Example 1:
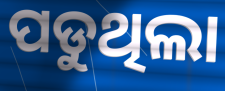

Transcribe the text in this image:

ପଡୁଥିଲା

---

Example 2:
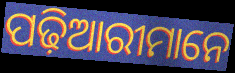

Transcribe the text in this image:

ପଢ଼ିଆରୀମାନେ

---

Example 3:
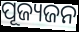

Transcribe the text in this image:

ପୂଜ୍ୟଜନ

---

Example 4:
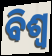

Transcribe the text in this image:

ବିଶ୍ୱ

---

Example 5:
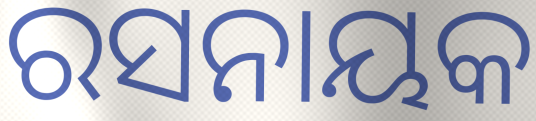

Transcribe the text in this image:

ରସନାୟକ